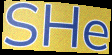
SHe